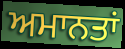
ਅਮਾਨਤਾਂ